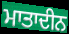
ਮਾਤਾਦੀਨ